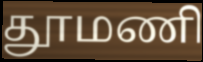
தூமணி